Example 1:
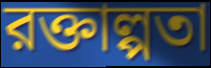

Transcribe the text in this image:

রক্তাল্পতা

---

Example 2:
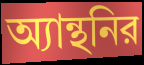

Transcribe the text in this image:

অ্যান্থনির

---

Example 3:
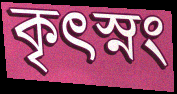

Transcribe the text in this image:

কৃৎস্নং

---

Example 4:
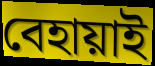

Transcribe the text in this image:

বেহায়াই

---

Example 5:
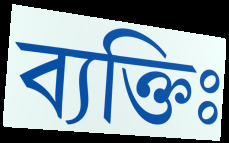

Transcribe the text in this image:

ব্যক্তিঃ